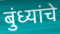
बुंध्यांचे